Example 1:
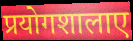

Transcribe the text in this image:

प्रयोगशालाए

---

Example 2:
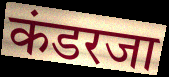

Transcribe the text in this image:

कंडरजा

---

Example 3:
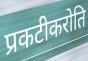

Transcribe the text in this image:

प्रकटीकरोति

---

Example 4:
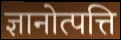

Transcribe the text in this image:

ज्ञानोत्पत्ति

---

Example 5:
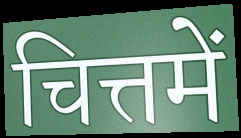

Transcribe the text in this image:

चित्तमें